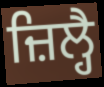
ਜ਼ਿਲ੍ਹੈ